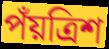
পঁয়ত্রিশ